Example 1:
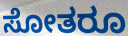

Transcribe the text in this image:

ಸೋತರೂ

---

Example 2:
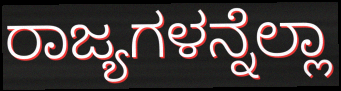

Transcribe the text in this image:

ರಾಜ್ಯಗಳನ್ನೆಲ್ಲಾ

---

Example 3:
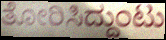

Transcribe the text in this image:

ತೋರಿಸಿದ್ದುಂಟು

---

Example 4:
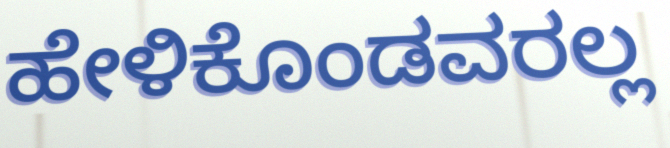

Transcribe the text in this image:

ಹೇಳಿಕೊಂಡವರಲ್ಲ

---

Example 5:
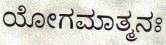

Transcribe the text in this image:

ಯೋಗಮಾತ್ಮನಃ